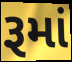
રૂમાં